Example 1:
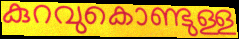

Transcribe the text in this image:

കുറവുകൊണ്ടുള്ള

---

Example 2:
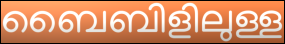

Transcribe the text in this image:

ബൈബിളിലുള്ള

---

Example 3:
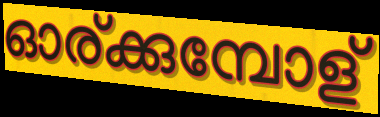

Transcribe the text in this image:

ഓര്ക്കുമ്പോള്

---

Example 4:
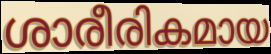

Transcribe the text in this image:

ശാരീരികമായ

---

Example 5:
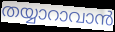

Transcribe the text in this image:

തയ്യാറാവാൻ